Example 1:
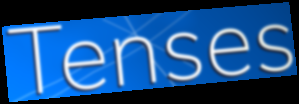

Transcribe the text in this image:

Tenses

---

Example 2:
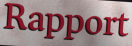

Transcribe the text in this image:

Rapport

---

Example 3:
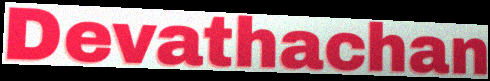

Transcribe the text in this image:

Devathachan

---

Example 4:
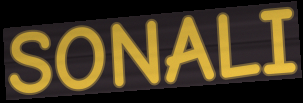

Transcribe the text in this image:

SONALI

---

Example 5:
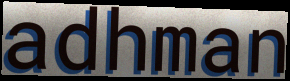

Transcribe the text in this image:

adhman